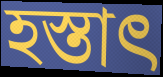
হস্তাৎ